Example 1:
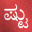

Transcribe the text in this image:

ಷ್ಟು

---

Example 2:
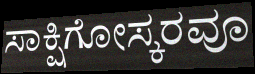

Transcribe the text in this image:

ಸಾಕ್ಷಿಗೋಸ್ಕರವೂ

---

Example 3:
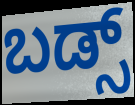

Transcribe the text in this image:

ಬಡ್ಸ್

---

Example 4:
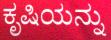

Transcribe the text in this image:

ಕೃಷಿಯನ್ನು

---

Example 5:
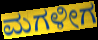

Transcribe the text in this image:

ಮಗಳೀಗ